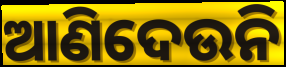
ଆଣିଦେଉନି